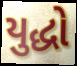
યુદ્ધો